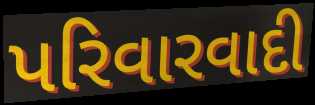
પરિવારવાદી